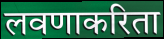
लवणाकरिता